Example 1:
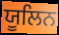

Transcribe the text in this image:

ਯੂਲਿਨ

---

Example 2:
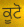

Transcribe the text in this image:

ਕੂਟੋ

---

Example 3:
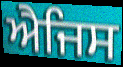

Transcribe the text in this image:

ਐਜਿਸ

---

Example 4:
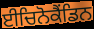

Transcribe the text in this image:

ਈਚਿਨੋਕੈਂਡਿਨ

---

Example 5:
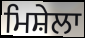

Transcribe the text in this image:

ਮਿਸ਼ੇਲਾ